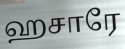
ஹசாரே